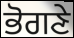
ਭੋਗਣੇ